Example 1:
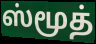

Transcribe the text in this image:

ஸ்மூத்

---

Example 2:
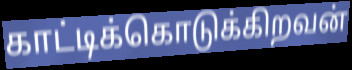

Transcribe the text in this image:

காட்டிக்கொடுக்கிறவன்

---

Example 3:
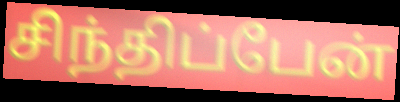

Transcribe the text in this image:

சிந்திப்பேன்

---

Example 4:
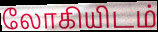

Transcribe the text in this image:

லோகியிடம்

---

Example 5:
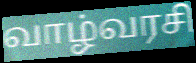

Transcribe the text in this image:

வாழ்வரசி